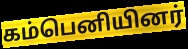
கம்பெனியினர்